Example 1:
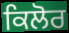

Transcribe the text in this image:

ਕਿਲੋਰ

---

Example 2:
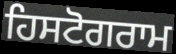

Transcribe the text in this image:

ਹਿਸਟੋਗਰਾਮ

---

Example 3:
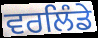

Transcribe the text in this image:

ਵਰਲਿੰਡੇ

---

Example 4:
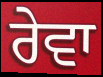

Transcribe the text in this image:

ਰੇਵਾ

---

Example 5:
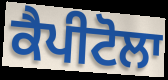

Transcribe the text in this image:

ਕੈਪੀਟੋਲਾ